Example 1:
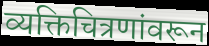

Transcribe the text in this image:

व्यक्तिचित्रणांवरून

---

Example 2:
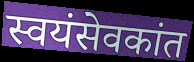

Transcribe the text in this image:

स्वयंसेवकांत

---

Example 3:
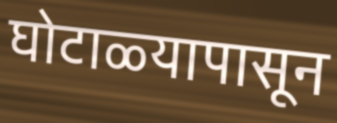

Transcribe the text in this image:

घोटाळ्यापासून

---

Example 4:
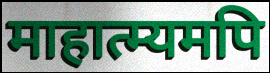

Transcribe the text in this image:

माहात्म्यमपि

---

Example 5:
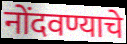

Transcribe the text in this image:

नोंदवण्याचे